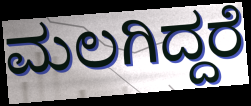
ಮಲಗಿದ್ದರೆ